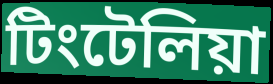
টিংটেলিয়া